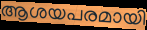
ആശയപരമായി